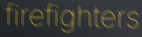
firefighters